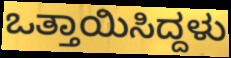
ಒತ್ತಾಯಿಸಿದ್ದಳು